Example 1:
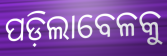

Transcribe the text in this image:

ପଡ଼ିଲାବେଳକୁ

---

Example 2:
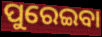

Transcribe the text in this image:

ପୁରେଇବା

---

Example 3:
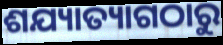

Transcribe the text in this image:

ଶଯ୍ୟାତ୍ୟାଗଠାରୁ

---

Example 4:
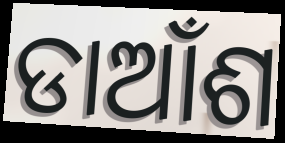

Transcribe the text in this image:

ଡାଆଁଶ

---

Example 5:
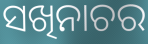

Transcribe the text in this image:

ସଖିନାଚର